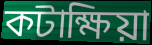
কটাক্ষিয়া